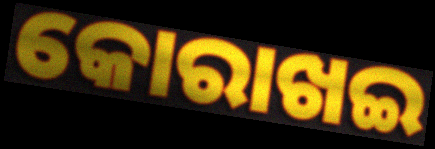
କୋରାଖଇ